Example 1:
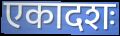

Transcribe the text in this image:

एकादशः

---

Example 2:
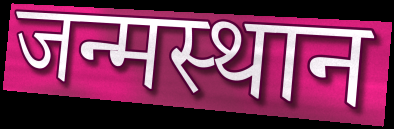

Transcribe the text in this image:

जन्मस्थान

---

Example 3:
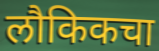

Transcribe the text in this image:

लौकिकचा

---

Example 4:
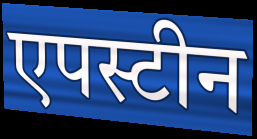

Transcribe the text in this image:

एपस्टीन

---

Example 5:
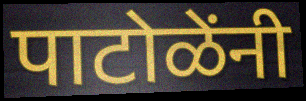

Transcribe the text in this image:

पाटोळेंनी